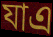
যাএ